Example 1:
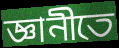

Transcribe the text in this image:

জ্ঞানীতে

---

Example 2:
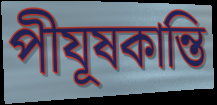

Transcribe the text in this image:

পীযূষকান্তি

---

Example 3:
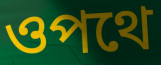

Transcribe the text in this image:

ওপথে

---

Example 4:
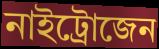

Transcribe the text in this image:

নাইট্রোজেন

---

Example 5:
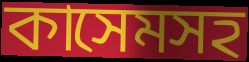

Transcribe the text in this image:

কাসেমসহ